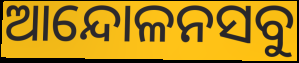
ଆନ୍ଦୋଳନସବୁ